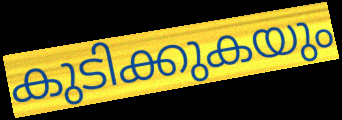
കുടിക്കുകയും